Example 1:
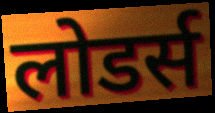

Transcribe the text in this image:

लोडर्स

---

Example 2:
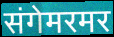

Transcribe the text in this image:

संगेमरमर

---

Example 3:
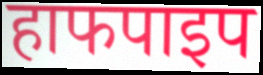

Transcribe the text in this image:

हाफपाइप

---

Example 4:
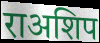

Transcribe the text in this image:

राअशिप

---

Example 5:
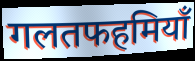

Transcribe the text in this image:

गलतफहमियाँ